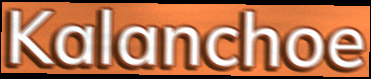
Kalanchoe